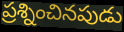
ప్రశ్నించినపుడు